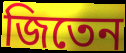
জিতেন